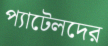
প্যাটেলদের